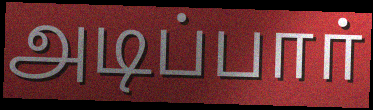
அடிப்பார்